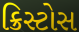
ક્રિસ્ટોસ